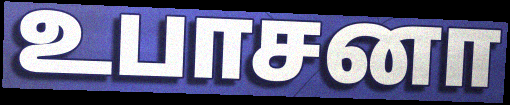
உபாசனா